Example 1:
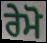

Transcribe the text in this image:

ਰੇਮੋ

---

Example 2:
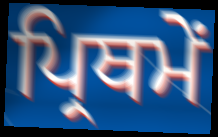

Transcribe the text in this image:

ਪ੍ਰਿਥਮੇਂ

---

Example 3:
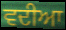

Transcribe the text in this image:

ਵਦੀਆ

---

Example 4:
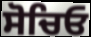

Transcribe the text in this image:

ਸੋਚਿਓ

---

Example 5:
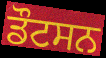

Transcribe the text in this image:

ਡੌਟਸਨ